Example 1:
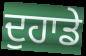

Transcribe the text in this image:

ਦੁਹਾਡੇ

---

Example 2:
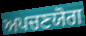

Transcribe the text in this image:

ਅਪਚਣਯੋਗ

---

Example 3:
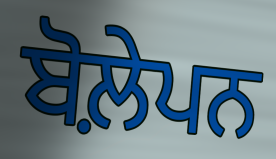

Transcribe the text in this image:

ਬੋਲ਼ੇਪਨ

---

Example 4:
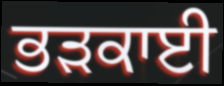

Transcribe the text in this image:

ਭੜਕਾਈ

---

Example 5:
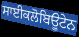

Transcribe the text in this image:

ਸਾਈਕਲੋਬਿਊਟੇਨ